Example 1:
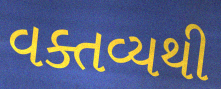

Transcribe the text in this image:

વક્તવ્યથી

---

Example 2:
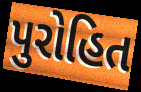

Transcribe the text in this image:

પુરોહિત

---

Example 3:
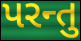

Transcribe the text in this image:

પરન્તુ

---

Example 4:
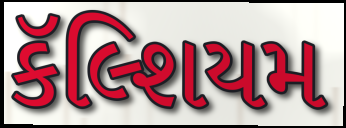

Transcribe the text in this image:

કૅલ્શિયમ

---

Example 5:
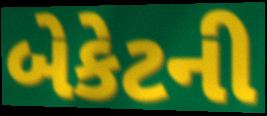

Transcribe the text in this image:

બેકેટની